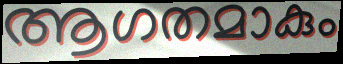
ആഗതമാകും